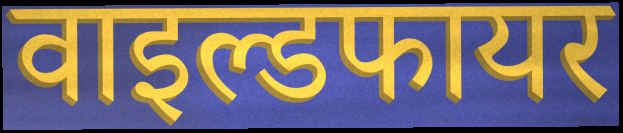
वाइल्डफायर